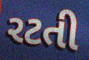
રટતી